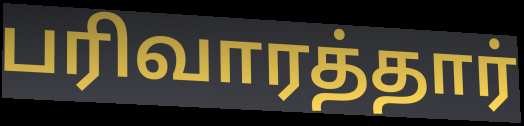
பரிவாரத்தார்